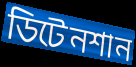
ডিটেনশান